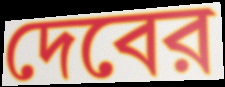
দেবের